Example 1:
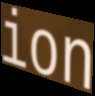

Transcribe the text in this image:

ion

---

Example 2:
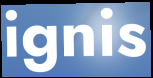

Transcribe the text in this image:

ignis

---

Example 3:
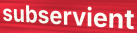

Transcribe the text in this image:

subservient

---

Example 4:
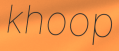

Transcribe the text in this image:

khoop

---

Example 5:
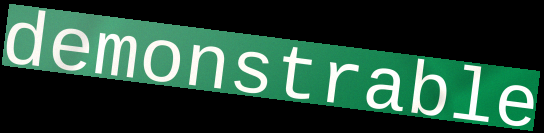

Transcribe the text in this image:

demonstrable